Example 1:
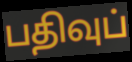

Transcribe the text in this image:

பதிவுப்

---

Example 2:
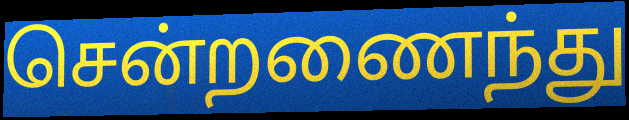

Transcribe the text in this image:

சென்றணைந்து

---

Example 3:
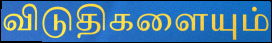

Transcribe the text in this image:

விடுதிகளையும்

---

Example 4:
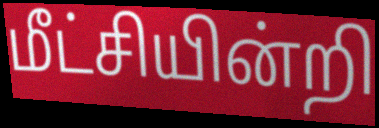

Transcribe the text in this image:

மீட்சியின்றி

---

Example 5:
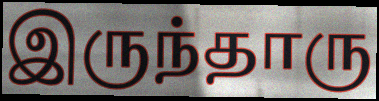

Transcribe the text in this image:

இருந்தாரு